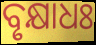
ବୃକ୍ଷାଧଃ